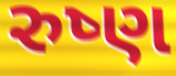
રુષ્ણ